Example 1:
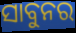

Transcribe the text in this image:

ସାବୁନର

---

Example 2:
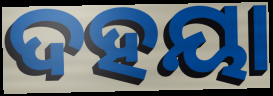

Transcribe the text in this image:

ଦହୟା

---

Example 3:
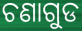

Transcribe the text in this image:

ଚଣାଗୁଡ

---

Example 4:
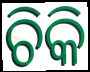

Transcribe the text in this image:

ଚିକି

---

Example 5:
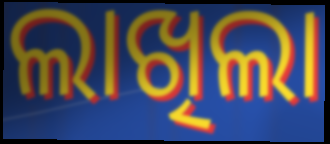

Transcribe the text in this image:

ଲାଖିଲା